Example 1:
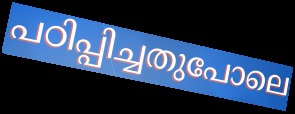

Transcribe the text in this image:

പഠിപ്പിച്ചതുപോലെ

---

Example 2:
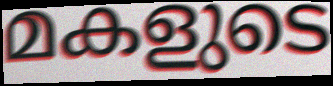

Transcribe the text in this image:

മകളുടെ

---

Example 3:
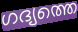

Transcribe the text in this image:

ഗദ്യത്തെ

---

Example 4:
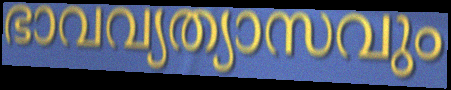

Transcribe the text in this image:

ഭാവവ്യത്യാസവും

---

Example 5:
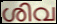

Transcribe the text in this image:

ശിവ